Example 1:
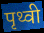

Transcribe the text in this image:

पृथ्वी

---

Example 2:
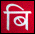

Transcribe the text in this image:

बि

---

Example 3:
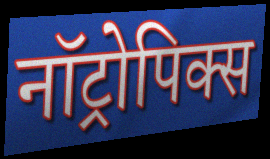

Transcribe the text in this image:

नॉट्रोपिक्स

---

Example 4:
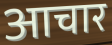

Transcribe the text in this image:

आचार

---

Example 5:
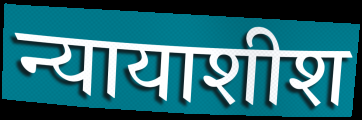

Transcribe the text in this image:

न्यायाशीश